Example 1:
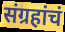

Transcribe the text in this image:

संग्रहांचं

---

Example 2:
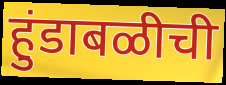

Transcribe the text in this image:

हुंडाबळीची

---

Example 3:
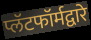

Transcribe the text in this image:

प्लॅटफॉर्मद्वारे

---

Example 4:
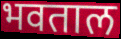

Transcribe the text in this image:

भवताल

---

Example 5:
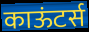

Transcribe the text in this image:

काऊंटर्स